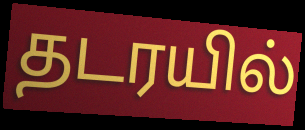
தடரயில்